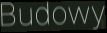
Budowy